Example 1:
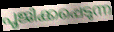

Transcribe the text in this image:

പൂജിക്കപ്പെടുന്ന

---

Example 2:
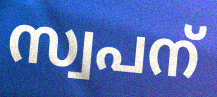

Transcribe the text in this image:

സ്വപന്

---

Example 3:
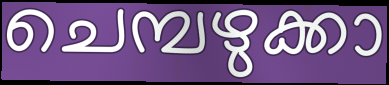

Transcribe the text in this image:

ചെമ്പഴുക്കാ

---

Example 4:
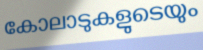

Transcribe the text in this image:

കോലാടുകളുടെയും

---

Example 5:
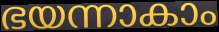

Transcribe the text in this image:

ഭയന്നാകാം